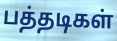
பத்தடிகள்